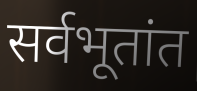
सर्वभूतांत